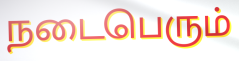
நடைபெரும்